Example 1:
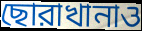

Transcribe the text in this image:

ছোরাখানাও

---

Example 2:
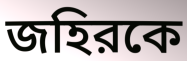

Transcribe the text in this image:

জহিরকে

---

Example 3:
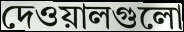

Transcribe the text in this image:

দেওয়ালগুলো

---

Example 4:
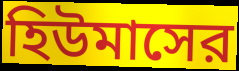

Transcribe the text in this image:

হিউমাসের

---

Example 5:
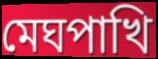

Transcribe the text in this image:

মেঘপাখি